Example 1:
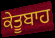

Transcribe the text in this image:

ਕੇਤੂਬਾਹ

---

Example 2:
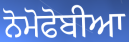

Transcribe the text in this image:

ਨੋਮੋਫੋਬੀਆ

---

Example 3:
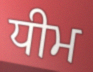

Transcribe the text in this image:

ਧੀਮ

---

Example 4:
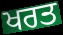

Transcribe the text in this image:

ਖਰਤ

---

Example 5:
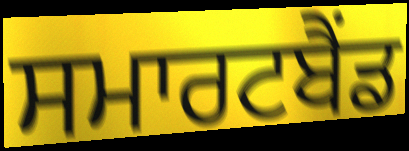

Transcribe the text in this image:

ਸਮਾਰਟਬੈਂਡ